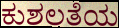
ಕುಶಲತೆಯ